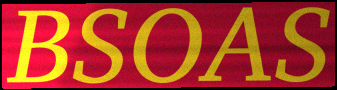
BSOAS